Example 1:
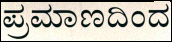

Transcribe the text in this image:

ಪ್ರಮಾಣದಿಂದ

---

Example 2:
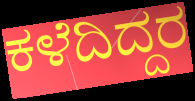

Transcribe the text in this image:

ಕಳೆದಿದ್ದರ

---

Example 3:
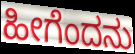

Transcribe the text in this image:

ಹೀಗೆಂದನು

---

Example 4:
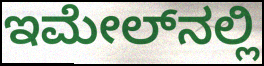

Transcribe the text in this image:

ಇಮೇಲ್‌ನಲ್ಲಿ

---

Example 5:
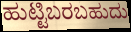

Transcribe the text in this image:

ಹುಟ್ಟಿಬರಬಹುದು